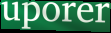
uporer